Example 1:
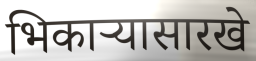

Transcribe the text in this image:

भिकार्‍यासारखे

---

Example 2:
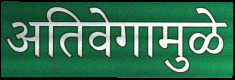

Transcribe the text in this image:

अतिवेगामुळे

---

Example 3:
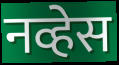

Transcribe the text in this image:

नव्हेस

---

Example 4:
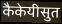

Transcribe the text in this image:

कैकेयीसुत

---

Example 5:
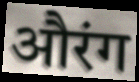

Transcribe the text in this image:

औरंग